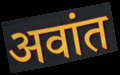
अवांत